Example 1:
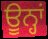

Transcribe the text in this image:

ਊਨ੍ਹਾਂ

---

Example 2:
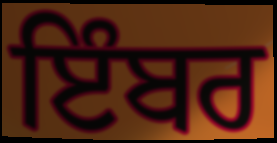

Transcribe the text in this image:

ਇੰਬਰ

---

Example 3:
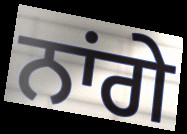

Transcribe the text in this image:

ਨਾਂਗੇ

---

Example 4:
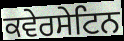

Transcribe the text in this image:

ਕਵੇਰਸੇਟਿਨ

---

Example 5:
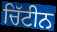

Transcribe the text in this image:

ਚਿੱਟੀਨ